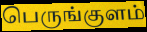
பெருங்குளம்